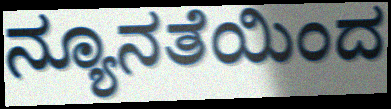
ನ್ಯೂನತೆಯಿಂದ